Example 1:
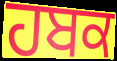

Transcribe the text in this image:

ਹਬਕ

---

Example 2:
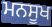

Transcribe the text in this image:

ਮਨਸੂਖ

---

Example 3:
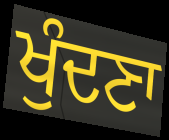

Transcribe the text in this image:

ਖੁੰਦਣਾ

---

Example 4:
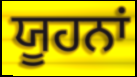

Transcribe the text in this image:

ਯੂਹਨਾਂ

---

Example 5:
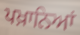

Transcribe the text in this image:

ਪਖ਼ਾਨਿਆਂ